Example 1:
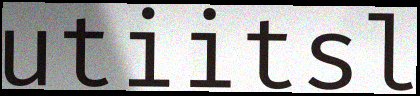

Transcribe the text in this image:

utiitsl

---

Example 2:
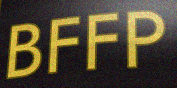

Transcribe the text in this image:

BFFP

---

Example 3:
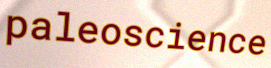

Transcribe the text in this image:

paleoscience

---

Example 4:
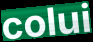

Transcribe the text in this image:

colui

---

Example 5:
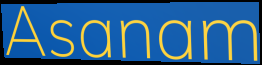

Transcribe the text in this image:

Asanam